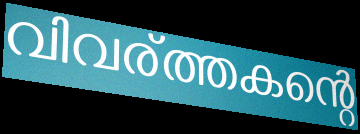
വിവര്ത്തകന്റെ